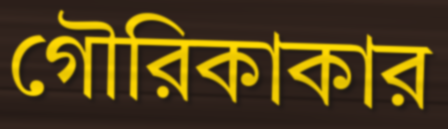
গৌরিকাকার